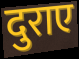
दुराए